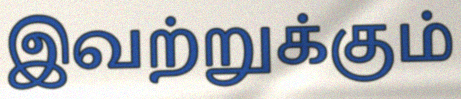
இவற்றுக்கும்